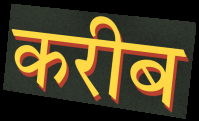
करीब